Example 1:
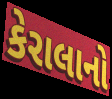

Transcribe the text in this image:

કેરાલાનો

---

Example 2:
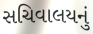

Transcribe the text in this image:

સચિવાલયનું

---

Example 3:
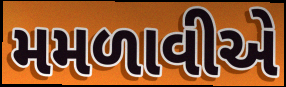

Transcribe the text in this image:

મમળાવીએ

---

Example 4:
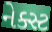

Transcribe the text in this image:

નેક્સ્ટ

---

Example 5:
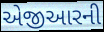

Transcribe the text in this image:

એજીઆરની